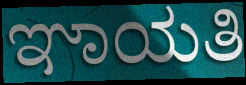
ಞಾಯತಿ